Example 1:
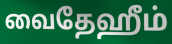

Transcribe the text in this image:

வைதேஹீம்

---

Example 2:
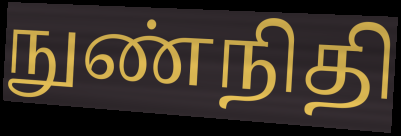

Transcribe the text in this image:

நுண்நிதி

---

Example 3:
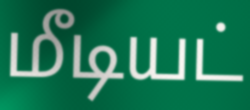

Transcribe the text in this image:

மீடியட்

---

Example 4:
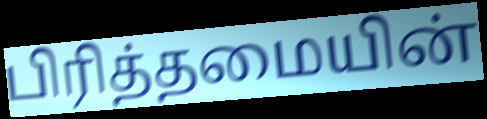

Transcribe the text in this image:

பிரித்தமையின்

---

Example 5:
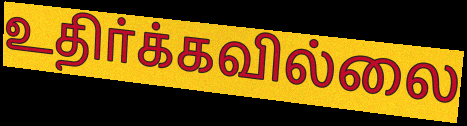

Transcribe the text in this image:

உதிர்க்கவில்லை